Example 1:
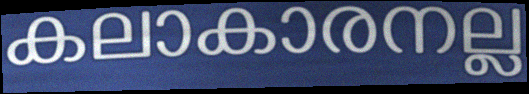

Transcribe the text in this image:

കലാകാരനല്ല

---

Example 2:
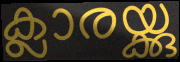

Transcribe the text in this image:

ക്ലാരയ്ക്കു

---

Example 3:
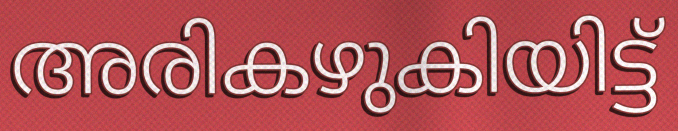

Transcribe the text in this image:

അരികഴുകിയിട്ട്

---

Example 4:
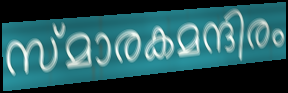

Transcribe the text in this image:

സ്മാരകമന്ദിരം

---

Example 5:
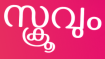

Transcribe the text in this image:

സ്ക്രൂവും